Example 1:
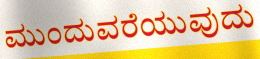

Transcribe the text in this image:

ಮುಂದುವರೆಯುವುದು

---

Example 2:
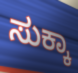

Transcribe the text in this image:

ಸುಕ್ಕಾ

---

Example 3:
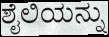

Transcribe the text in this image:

ಶೈಲಿಯನ್ನು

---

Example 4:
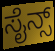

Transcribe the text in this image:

ಸೈನ್ಸ್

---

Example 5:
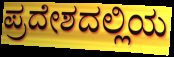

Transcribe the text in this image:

ಪ್ರದೇಶದಲ್ಲಿಯ